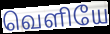
வெளியே